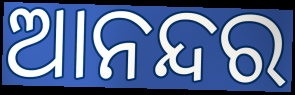
ଆନନ୍ଦର